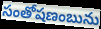
సంతోషణంబును